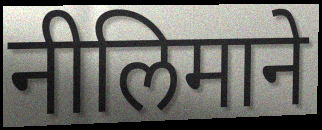
नीलिमाने